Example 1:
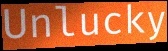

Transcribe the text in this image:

Unlucky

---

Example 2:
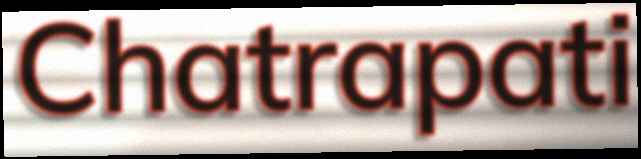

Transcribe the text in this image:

Chatrapati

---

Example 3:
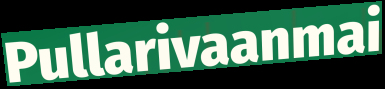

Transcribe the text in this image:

Pullarivaanmai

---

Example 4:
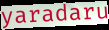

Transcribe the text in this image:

yaradaru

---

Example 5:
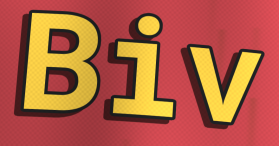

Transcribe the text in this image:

Biv